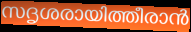
സദൃശരായിത്തീരാൻ